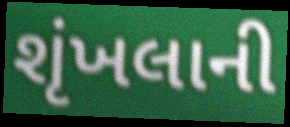
શૃંખલાની